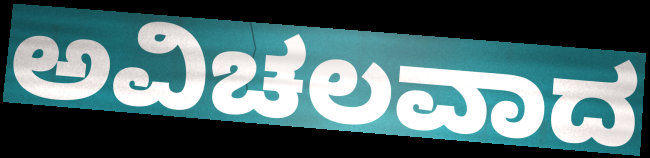
ಅವಿಚಲವಾದ